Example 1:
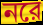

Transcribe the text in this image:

নরে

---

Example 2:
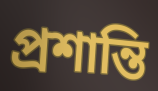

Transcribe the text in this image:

প্রশান্তি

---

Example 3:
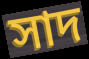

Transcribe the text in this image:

সাদ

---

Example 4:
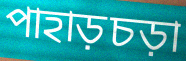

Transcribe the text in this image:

পাহাড়চড়া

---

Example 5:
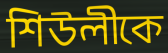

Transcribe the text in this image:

শিউলীকে